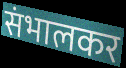
संभालकर